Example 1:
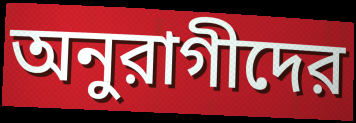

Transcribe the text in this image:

অনুরাগীদের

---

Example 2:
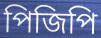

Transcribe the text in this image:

পিজিপি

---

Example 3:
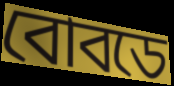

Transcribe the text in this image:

বোবডে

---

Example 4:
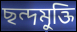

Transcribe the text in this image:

ছন্দমুক্তি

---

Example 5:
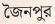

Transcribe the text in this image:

জৈনপুর